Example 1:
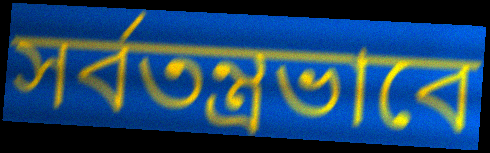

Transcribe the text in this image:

সর্বতন্ত্রভাবে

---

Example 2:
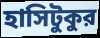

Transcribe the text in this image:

হাসিটুকুর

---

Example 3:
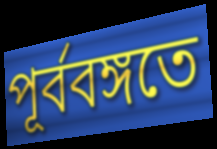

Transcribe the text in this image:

পূর্ববঙ্গতে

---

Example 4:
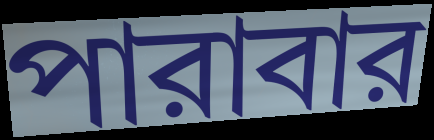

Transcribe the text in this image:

পারাবার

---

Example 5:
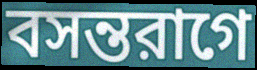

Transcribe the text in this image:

বসন্তরাগে